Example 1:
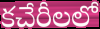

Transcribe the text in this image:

కచేరీలలో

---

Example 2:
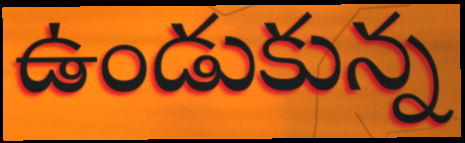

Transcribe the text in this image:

ఉండుకున్న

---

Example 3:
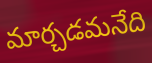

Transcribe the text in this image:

మార్చడమనేది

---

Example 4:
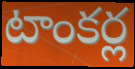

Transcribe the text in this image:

టాంకర్ల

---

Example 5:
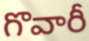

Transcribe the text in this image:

గొవారీ